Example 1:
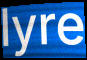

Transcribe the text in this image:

lyre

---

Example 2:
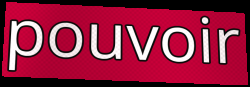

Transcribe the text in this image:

pouvoir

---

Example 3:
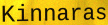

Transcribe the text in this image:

Kinnaras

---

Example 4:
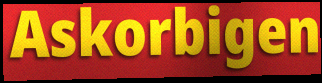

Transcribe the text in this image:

Askorbigen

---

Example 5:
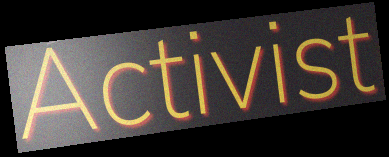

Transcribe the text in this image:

Activist